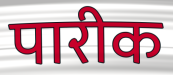
पारीक